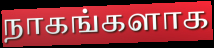
நாகங்களாக